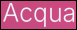
Acqua